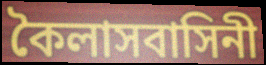
কৈলাসবাসিনী